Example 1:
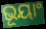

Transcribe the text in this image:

ଭୂୟାଂ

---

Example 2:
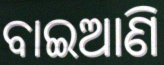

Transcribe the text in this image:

ବାଇଆଣି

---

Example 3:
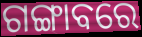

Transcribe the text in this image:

ଗଙ୍ଗାବରେ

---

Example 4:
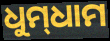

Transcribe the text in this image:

ଧୁମ୍‌ଧାମ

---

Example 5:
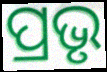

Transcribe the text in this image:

ପ୍ରଭୃ